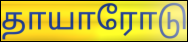
தாயாரோடு